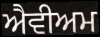
ਐਵੀਅਮ